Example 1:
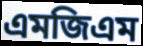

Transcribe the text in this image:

এমজিএম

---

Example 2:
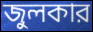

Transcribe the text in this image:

জুলকার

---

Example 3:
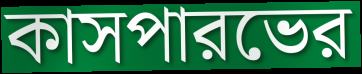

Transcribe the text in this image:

কাসপারভের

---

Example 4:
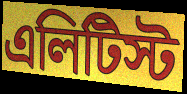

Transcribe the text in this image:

এলিটিস্ট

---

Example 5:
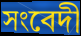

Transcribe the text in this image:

সংবেদী